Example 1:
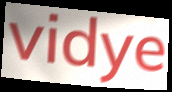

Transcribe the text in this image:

vidye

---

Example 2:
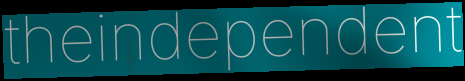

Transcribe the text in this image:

theindependent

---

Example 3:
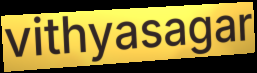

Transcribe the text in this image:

vithyasagar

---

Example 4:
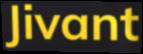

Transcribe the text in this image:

Jivant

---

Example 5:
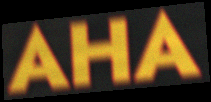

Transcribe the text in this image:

AHA